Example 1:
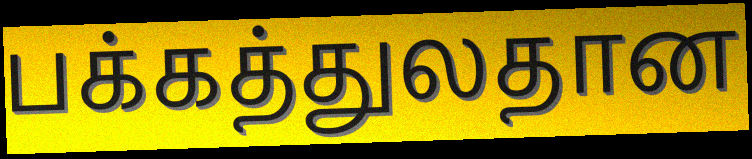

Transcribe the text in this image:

பக்கத்துலதான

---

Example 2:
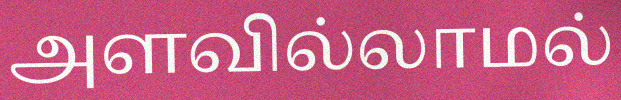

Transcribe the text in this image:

அளவில்லாமல்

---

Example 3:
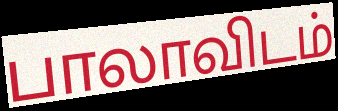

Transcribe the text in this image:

பாலாவிடம்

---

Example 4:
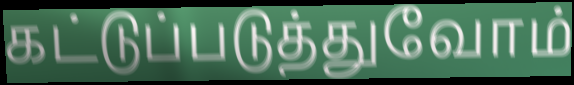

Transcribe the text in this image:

கட்டுப்படுத்துவோம்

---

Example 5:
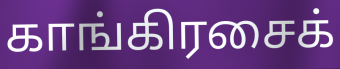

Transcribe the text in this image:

காங்கிரசைக்